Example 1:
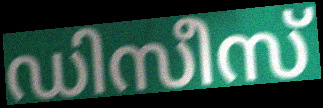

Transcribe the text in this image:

ഡിസീസ്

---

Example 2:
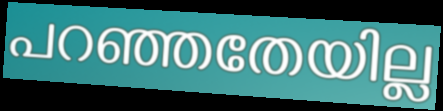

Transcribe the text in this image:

പറഞ്ഞതേയില്ല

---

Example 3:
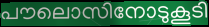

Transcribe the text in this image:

പൗലൊസിനോടുകൂടി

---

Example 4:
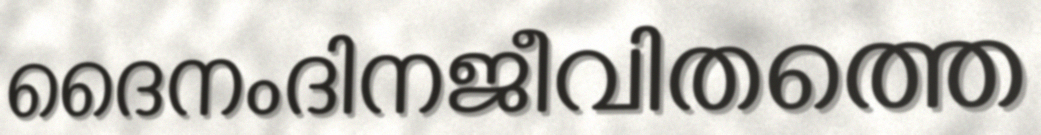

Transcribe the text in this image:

ദൈനംദിനജീവിതത്തെ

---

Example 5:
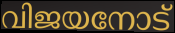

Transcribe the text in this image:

വിജയനോട്